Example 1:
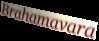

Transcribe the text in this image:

Brahamavara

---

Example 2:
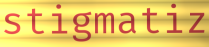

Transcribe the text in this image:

stigmatiz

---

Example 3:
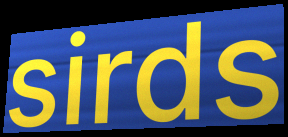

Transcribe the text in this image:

sirds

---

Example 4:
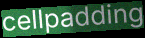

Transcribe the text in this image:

cellpadding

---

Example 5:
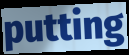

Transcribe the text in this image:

putting